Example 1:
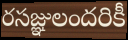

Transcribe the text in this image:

రసజ్ఞులందరికీ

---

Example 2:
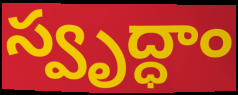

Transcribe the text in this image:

స్వృద్ధాం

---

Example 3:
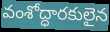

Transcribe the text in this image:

వంశోద్ధారకులైన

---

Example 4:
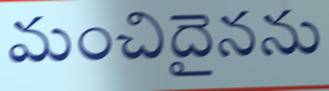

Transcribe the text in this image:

మంచిదైనను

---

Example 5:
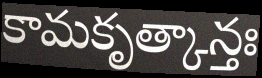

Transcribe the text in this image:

కామకృత్కాన్తః